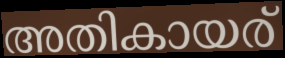
അതികായര്